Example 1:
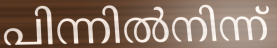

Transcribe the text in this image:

പിന്നിൽനിന്ന്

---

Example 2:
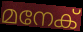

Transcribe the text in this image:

മനേക്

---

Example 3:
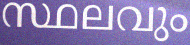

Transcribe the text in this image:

സ്ഥലവും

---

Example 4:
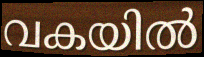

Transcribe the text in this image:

വകയിൽ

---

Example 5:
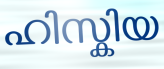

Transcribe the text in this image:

ഹിസ്കിയ